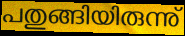
പതുങ്ങിയിരുന്നു്